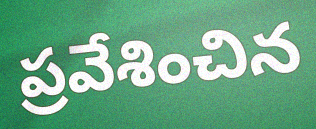
ప్రవేశించిన